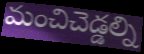
మంచిచెడ్డల్ని